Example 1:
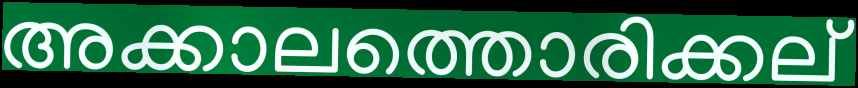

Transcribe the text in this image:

അക്കാലത്തൊരിക്കല്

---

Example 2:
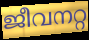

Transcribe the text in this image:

ജീവനറ്റ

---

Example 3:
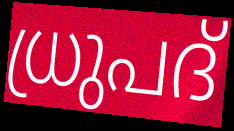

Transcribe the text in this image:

ധ്രുപദ്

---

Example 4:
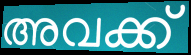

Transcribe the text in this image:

അവക്ക്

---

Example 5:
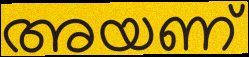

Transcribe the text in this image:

അയണ്